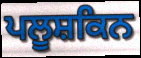
ਪਲੂਸ਼ਕਿਨ